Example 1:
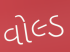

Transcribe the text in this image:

વોલ્ડ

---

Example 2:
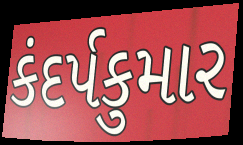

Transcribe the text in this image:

કંદર્પકુમાર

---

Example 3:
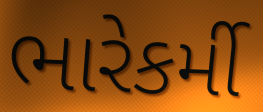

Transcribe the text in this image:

ભારેકર્મી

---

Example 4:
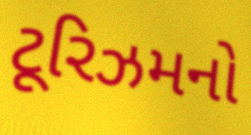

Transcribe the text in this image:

ટૂરિઝમનો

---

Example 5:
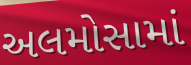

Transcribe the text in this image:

અલમોસામાં